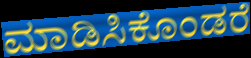
ಮಾಡಿಸಿಕೊಂಡರೆ